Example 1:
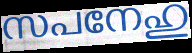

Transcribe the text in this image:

സപനേഹു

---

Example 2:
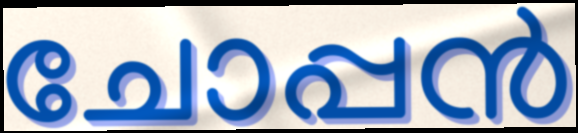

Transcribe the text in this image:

ചോപ്പൻ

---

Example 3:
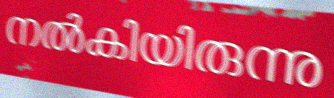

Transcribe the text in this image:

നൽകിയിരുന്നു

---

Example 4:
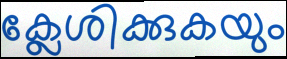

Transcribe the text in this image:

ക്ലേശിക്കുകയും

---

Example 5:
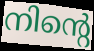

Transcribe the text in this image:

നിന്റെ